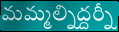
మమ్మల్నిద్దర్నీ